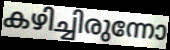
കഴിച്ചിരുന്നോ